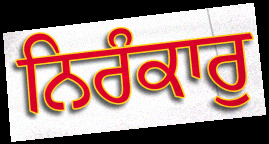
ਨਿਰੰਕਾਰੁ